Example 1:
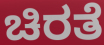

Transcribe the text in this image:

ಚಿರತೆ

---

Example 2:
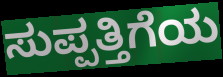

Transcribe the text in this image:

ಸುಪ್ಪತ್ತಿಗೆಯ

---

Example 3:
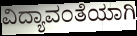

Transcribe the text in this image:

ವಿದ್ಯಾವಂತೆಯಾಗಿ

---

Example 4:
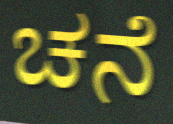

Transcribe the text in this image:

ಚನೆ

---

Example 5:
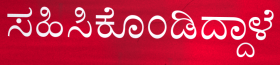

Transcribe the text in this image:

ಸಹಿಸಿಕೊಂಡಿದ್ದಾಳೆ